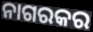
ନାଗରକର